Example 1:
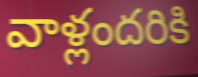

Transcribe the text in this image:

వాళ్లందరికి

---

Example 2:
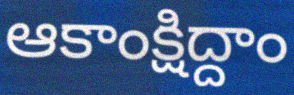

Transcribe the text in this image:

ఆకాంక్షిద్దాం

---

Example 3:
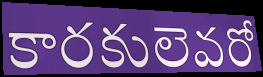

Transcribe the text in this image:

కారకులెవరో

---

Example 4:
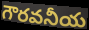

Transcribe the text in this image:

గౌరవనీయ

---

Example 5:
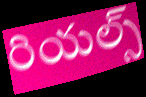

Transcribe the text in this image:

రియల్స్